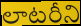
లాటరీని